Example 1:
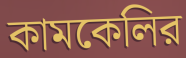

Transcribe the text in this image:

কামকেলির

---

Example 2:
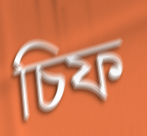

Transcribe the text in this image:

চিফ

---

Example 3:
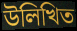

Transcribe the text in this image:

উলিখিত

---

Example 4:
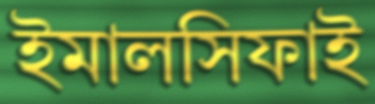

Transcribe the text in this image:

ইমালসিফাই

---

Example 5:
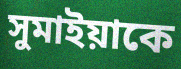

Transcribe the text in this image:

সুমাইয়াকে